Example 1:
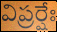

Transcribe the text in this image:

విప్రర్షేః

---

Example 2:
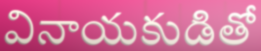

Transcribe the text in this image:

వినాయకుడితో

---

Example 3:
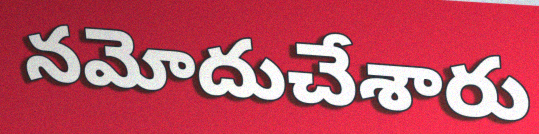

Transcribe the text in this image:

నమోదుచేశారు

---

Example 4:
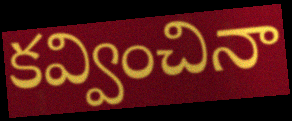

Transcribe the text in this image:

కవ్వించినా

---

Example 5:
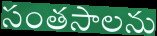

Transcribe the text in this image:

సంతసాలను